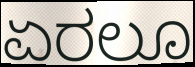
ಏರಲೂ